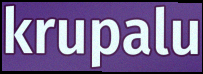
krupalu